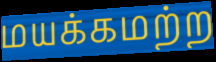
மயக்கமற்ற